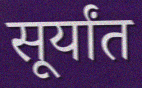
सूर्यांत